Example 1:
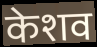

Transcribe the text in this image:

केशव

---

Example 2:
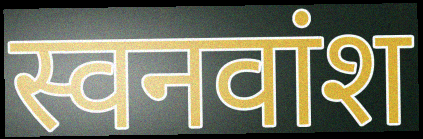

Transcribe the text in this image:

स्वनवांश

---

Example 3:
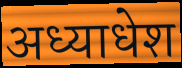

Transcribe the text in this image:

अध्याधेश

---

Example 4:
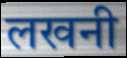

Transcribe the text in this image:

लखनी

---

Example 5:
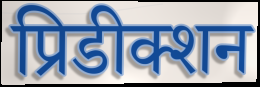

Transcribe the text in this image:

प्रिडीक्शन